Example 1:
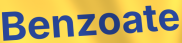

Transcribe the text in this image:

Benzoate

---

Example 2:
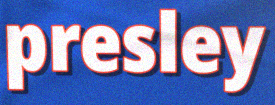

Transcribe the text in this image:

presley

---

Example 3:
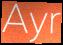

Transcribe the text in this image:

Ayr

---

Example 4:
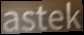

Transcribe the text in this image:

astek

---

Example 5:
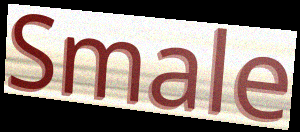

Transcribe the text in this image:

Smale